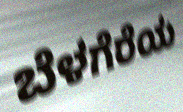
ಬೆಳಗೆರೆಯ